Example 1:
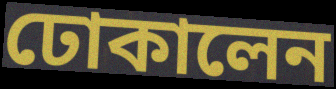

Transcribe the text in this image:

ঢোকালেন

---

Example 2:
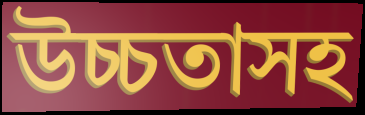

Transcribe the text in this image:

উচ্চতাসহ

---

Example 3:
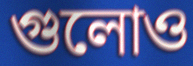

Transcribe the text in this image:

গুলোও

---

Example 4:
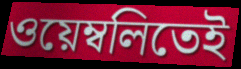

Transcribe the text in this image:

ওয়েম্বলিতেই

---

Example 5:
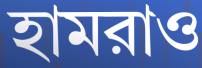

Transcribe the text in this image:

হামরাও